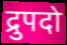
द्रुपदो